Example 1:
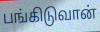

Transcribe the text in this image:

பங்கிடுவான்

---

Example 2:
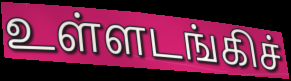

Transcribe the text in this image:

உள்ளடங்கிச்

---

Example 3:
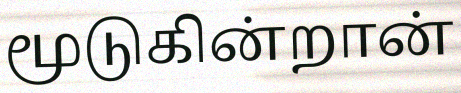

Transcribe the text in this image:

மூடுகின்றான்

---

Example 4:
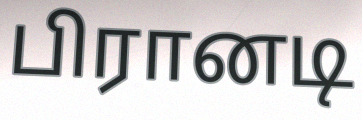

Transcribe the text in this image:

பிரானடி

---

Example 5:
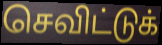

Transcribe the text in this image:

செவிட்டுக்